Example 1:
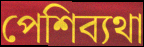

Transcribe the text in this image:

পেশিব্যথা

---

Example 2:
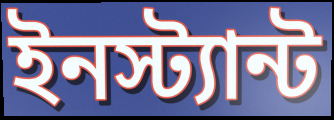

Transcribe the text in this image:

ইনস্ট্যান্ট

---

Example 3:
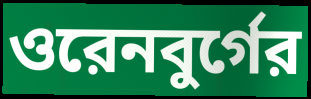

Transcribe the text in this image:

ওরেনবুর্গের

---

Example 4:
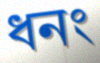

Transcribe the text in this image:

ধনং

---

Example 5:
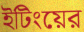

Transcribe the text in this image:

ইটিংয়ের